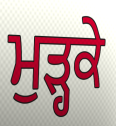
ਮੁੜ੍ਹਕੇ